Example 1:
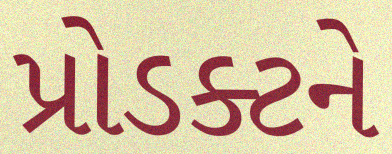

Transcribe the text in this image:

પ્રોડક્ટને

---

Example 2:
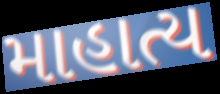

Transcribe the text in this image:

માહાત્ય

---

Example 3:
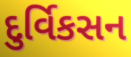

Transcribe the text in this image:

દુર્વિકસન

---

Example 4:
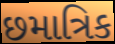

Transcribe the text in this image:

છમાત્રિક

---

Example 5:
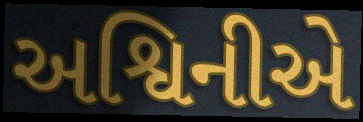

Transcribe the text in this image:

અશ્વિનીએ